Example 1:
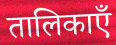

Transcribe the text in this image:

तालिकाएँ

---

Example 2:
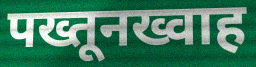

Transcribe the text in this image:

पख्तूनख्वाह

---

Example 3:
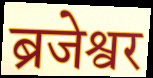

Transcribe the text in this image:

ब्रजेश्वर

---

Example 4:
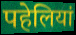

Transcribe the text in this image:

पहेलियां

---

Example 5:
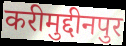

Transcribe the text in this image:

करीमुद्दीनपुर